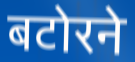
बटोरने